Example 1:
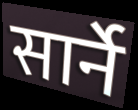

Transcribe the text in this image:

सार्ने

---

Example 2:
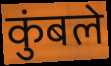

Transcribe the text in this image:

कुंबले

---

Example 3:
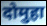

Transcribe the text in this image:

दोमुहा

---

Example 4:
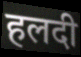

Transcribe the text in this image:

हलदी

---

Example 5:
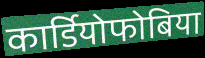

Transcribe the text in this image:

कार्डियोफोबिया